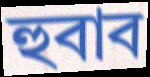
হুবাব